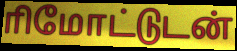
ரிமோட்டுடன்